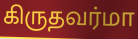
கிருதவர்மா